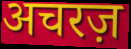
अचरज़